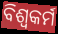
ବିଶ୍ୱକର୍ମ